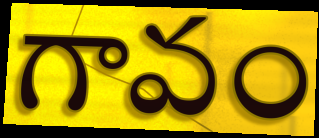
గావం